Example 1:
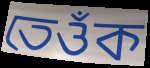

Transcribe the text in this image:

তেওঁক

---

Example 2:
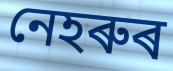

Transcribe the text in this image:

নেহৰুৰ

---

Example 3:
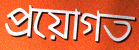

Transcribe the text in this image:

প্ৰয়োগত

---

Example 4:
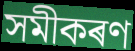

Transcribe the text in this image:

সমীকৰণ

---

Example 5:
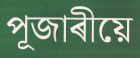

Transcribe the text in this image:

পূজাৰীয়ে